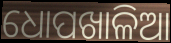
ଧୋପଖାଳିଆ